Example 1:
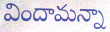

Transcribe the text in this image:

విందామన్నా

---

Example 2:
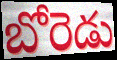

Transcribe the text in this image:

బోరెడు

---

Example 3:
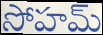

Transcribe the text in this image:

సోహమ్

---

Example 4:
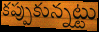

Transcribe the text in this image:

కప్పుకున్నట్టు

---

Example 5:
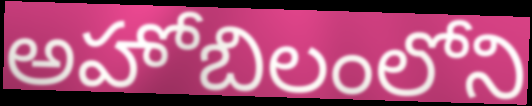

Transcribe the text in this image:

అహోబిలంలోని